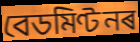
বেডমিণ্টনৰ